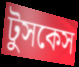
টুসকেস